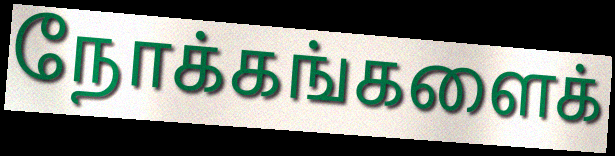
நோக்கங்களைக்